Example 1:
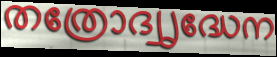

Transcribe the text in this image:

തത്രോദ്വൃദ്ധേന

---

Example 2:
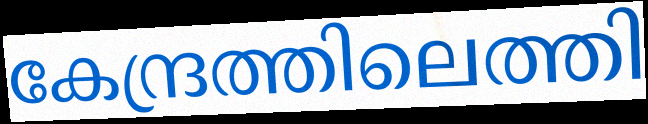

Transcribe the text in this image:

കേന്ദ്രത്തിലെത്തി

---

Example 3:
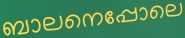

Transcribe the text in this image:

ബാലനെപ്പോലെ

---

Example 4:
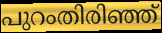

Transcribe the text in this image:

പുറംതിരിഞ്ഞ്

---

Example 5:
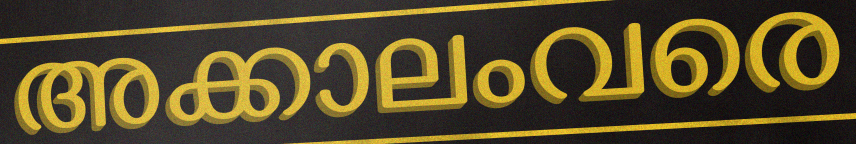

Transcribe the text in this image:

അക്കാലംവരെ